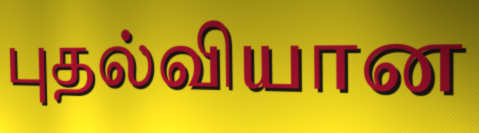
புதல்வியான